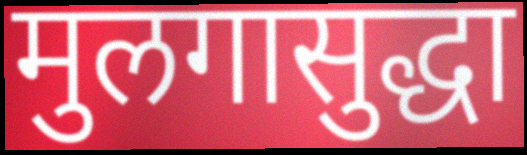
मुलगासुद्धा